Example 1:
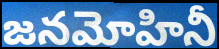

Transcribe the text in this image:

జనమోహినీ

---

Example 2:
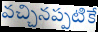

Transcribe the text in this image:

వచ్చినప్పటికే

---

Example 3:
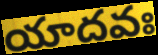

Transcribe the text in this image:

యాదవః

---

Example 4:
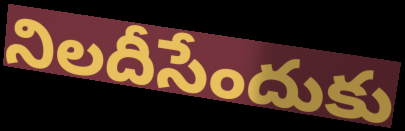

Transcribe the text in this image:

నిలదీసేందుకు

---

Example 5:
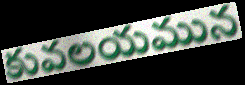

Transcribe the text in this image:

కువలయమున